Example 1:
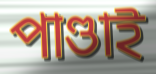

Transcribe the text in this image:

পাণ্ডাই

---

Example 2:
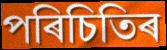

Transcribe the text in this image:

পৰিচিতিৰ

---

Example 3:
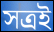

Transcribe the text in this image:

সত্ৰই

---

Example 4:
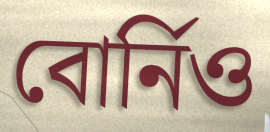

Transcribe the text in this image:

বোৰ্নিও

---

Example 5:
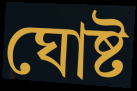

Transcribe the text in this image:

ঘোষ্ট